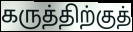
கருத்திற்குத்